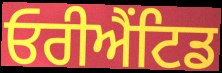
ਓਰੀਐਂਟਿਡ